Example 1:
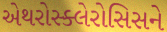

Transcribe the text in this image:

એથરોસ્ક્લેરોસિસને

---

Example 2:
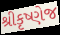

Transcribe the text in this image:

શ્રીકૃષ્ણેજ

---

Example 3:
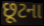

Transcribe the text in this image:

છૂટના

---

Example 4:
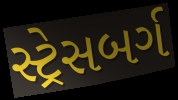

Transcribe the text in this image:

સ્ટ્રેસબર્ગ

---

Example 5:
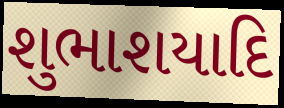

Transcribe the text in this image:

શુભાશયાદિ